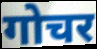
गोचर